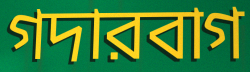
গদারবাগ